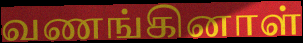
வணங்கினாள்